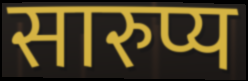
सारुप्य